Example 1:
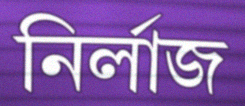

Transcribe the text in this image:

নির্লাজ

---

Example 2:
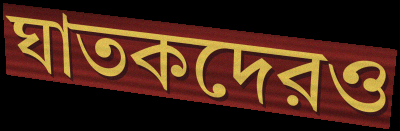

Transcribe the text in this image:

ঘাতকদেরও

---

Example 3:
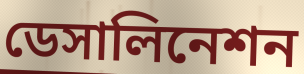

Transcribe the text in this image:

ডেসালিনেশন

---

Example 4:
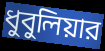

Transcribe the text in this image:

ধুবুলিয়ার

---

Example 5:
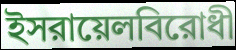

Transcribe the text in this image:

ইসরায়েলবিরোধী